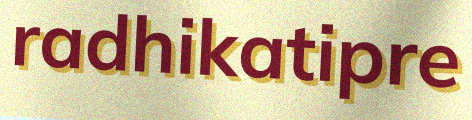
radhikatipre